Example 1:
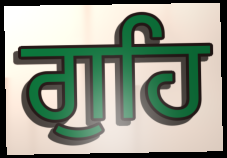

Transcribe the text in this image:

ਗੁਹਿ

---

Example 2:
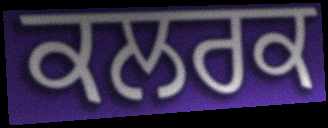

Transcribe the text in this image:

ਕਲਰਕ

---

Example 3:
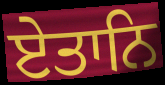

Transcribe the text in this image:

ਏਤਾਨਿ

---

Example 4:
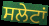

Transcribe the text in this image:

ਸਲੇਟਾਂ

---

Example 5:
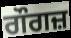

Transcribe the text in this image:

ਗੌਗਜ਼